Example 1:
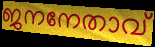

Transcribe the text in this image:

ജനനേതാവ്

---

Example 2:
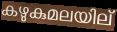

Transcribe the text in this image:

കഴുകുമലയില്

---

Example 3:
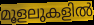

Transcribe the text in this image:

മൂളലുകളിൽ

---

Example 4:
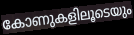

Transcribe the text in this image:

കോണുകളിലൂടെയും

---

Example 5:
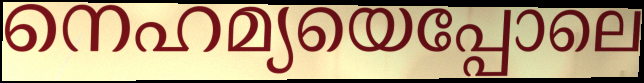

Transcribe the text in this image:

നെഹമ്യയെപ്പോലെ